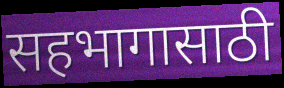
सहभागासाठी